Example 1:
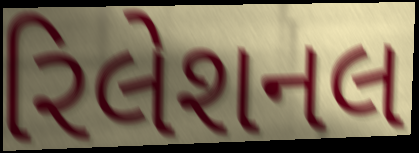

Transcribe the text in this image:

રિલેશનલ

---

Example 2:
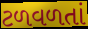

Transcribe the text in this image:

ટળવળતાં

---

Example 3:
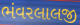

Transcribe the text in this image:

ભંવરલાલજી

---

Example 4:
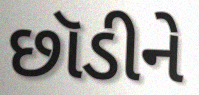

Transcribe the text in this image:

છૉડીને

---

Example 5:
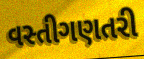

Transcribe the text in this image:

વસ્તીગણતરી